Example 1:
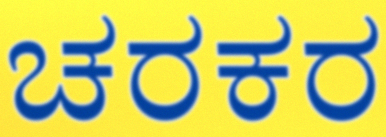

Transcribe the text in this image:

ಚರಕರ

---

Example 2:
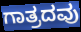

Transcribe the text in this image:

ಗಾತ್ರದವು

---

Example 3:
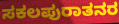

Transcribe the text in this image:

ಸಕಲಪುರಾತನರ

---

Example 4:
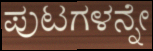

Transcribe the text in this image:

ಪುಟಗಳನ್ನೇ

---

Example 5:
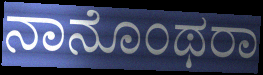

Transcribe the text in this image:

ನಾನೊಂಥರಾ